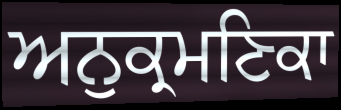
ਅਨੁਕ੍ਰਮਣਿਕਾ